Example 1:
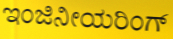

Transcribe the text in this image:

ಇಂಜಿನೀಯರಿಂಗ್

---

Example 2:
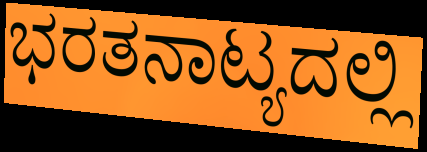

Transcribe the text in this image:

ಭರತನಾಟ್ಯದಲ್ಲಿ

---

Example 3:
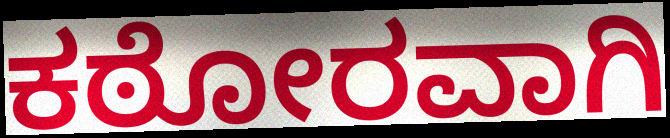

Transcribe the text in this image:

ಕಠೋರವಾಗಿ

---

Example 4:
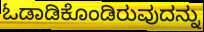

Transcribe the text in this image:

ಓಡಾಡಿಕೊಂಡಿರುವುದನ್ನು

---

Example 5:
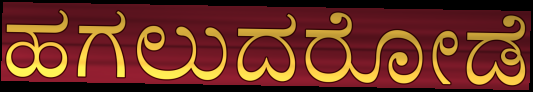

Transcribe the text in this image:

ಹಗಲುದರೋಡೆ